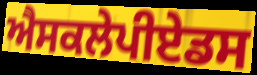
ਐਸਕਲੇਪੀਏਡਸ